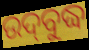
ଉଦ୍‌ବୁଦ୍ଧ